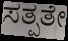
ಸತ್ಪತೇ